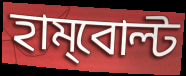
হাম্‌বোল্ট